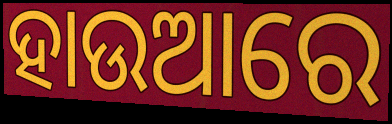
ହାଉଆରେ